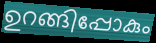
ഉറങ്ങിപ്പോകും